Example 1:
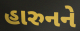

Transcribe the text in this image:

હારુનને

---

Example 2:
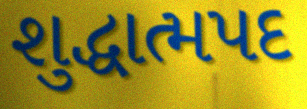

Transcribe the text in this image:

શુદ્ધાત્મપદ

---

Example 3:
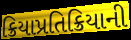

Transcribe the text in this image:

ક્રિયાપ્રતિક્રિયાની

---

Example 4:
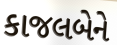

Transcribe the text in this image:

કાજલબેને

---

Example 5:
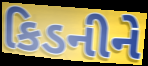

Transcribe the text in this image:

કિડનીને